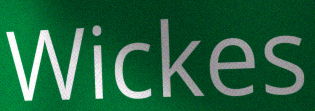
Wickes